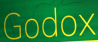
Godox